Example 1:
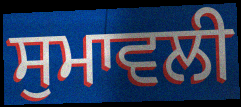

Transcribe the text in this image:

ਸੁਮਾਵਲੀ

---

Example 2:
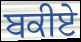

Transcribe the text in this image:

ਬਕੀਏ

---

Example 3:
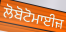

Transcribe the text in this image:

ਲੋਬੋਟੋਮਾਈਜ਼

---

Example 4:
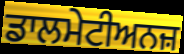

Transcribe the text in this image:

ਡਾਲਮੇਟੀਅਨਜ਼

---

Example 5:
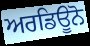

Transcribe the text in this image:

ਅਰਡਿਊਨੋ